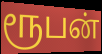
ரூபன்